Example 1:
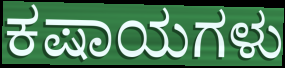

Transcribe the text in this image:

ಕಷಾಯಗಳು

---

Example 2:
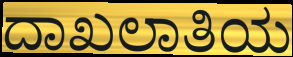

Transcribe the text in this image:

ದಾಖಲಾತಿಯ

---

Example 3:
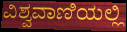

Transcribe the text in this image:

ವಿಶ್ವವಾಣಿಯಲ್ಲಿ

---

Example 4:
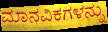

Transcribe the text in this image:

ಮಾನವಿಕಗಳನ್ನು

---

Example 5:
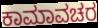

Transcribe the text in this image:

ಕಾಮಾವಚರ